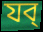
যব্